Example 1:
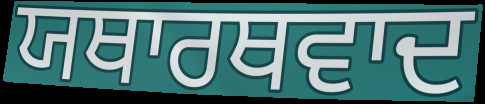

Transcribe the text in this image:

ਯਥਾਰਥਵਾਦ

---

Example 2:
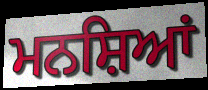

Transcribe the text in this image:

ਮਨਸ਼ਿਆਂ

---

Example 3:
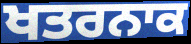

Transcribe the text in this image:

ਖਤਰਨਾਕ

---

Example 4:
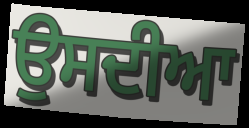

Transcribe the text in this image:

ਉਸਦੀਆ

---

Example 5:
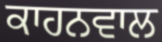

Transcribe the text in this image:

ਕਾਹਨਵਾਲ